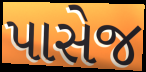
પાસેજ